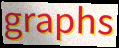
graphs